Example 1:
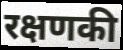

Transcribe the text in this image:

रक्षणकी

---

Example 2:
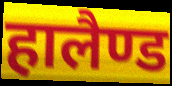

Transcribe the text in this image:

हालैण्ड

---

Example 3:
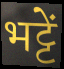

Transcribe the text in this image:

भट्टें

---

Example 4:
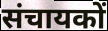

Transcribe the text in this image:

संचायकों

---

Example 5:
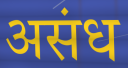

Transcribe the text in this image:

असंध